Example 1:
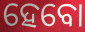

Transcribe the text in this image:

ହେବୋ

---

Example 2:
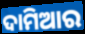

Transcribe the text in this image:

ଦାମିଆର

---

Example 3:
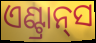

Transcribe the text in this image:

ଏଣ୍ଟ୍ରାନ୍‍ସ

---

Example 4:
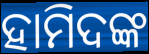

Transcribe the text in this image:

ହାମିଦଙ୍କ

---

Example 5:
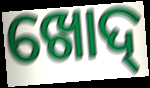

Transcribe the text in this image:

ଖୋଦ୍